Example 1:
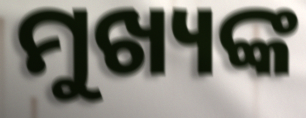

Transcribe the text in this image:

ମୁଖ୍ୟଙ୍କ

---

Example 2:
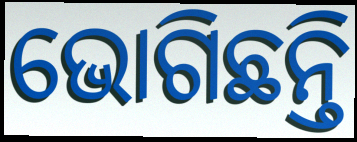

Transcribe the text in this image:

ଭୋଗିଛନ୍ତି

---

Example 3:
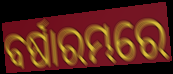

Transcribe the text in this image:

ବର୍ଷାରମ୍ଭରେ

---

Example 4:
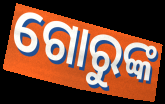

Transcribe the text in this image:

ଗୋରୁଙ୍କ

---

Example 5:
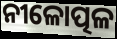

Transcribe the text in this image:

ନୀଳୋତ୍ପଳ